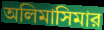
অলিমাসিমার